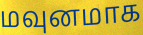
மவுனமாக